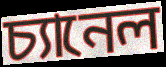
চ্যানেল